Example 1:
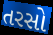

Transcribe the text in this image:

તરસો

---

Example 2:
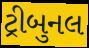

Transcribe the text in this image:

ટ્રીબુનલ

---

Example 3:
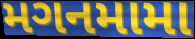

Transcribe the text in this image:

મગનમામા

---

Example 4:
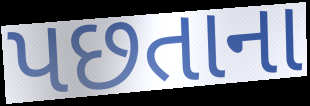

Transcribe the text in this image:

પછતાના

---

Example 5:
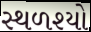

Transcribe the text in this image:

સ્થળશ્યો